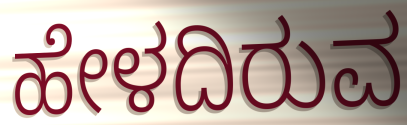
ಹೇಳದಿರುವ